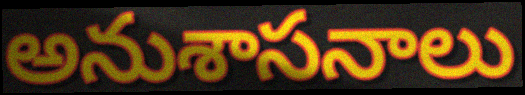
అనుశాసనాలు